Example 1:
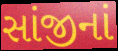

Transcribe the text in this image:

સાંજીનાં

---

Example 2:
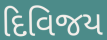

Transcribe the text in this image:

દિવિજય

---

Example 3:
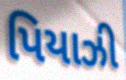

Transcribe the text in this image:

પિયાઝી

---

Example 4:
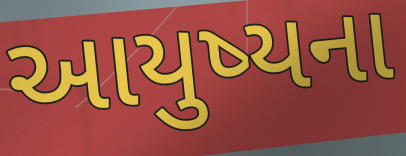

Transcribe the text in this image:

આયુષ્યના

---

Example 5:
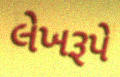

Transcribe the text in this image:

લેખરૂપે